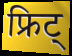
फ्रिट्